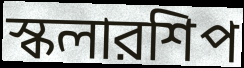
স্কলারশিপ